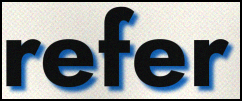
refer